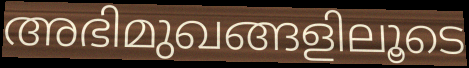
അഭിമുഖങ്ങളിലൂടെ